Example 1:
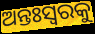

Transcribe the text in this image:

ଅନ୍ତଃସ୍ୱରକୁ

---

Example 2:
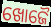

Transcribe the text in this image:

ଖୋଜୈ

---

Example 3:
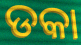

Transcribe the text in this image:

ଡକା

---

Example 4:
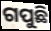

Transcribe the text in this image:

ଗପୁଛି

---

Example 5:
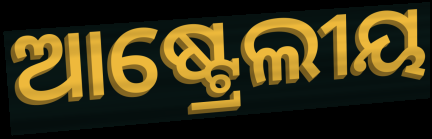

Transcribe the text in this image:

ଆଷ୍ଟ୍ରେଲୀୟ